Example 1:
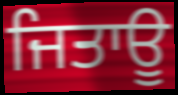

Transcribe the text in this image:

ਜਿਤਾਊ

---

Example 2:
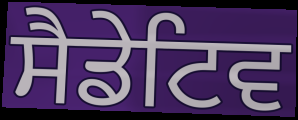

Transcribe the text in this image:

ਸੈਡੇਟਿਵ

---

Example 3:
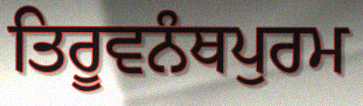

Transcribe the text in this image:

ਤਿਰੂਵਨੰਥਪੁਰਮ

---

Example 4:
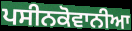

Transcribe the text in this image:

ਪਸੀਨਕੋਵਾਨੀਆ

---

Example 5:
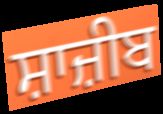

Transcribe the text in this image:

ਸ਼ਾਜ਼ੀਬ